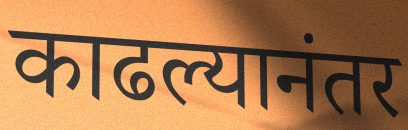
काढल्यानंतर